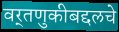
वर्तणुकीबद्दलचे